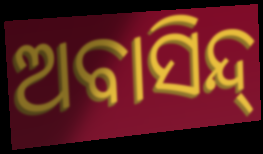
ଅବାସିନ୍ଦ୍